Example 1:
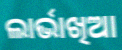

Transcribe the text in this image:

ଲାର୍ଭାଖିଆ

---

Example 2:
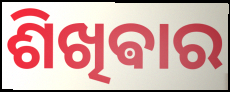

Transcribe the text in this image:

ଶିଖିଵାର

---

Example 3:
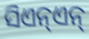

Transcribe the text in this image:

ସିଏନ୍ଏନ୍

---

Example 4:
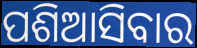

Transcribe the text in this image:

ପଶିଆସିବାର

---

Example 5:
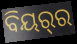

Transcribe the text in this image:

ବିୟର୍‌ର